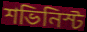
শভিনিস্ট